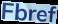
Fbref